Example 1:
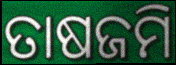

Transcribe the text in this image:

ତାଷଜମି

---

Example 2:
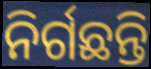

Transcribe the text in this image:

ନିର୍ଗଛନ୍ତି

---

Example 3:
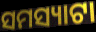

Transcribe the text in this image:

ସମସ୍ୟାଟା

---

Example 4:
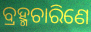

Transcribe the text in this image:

ବ୍ରହ୍ମଚାରିଣେ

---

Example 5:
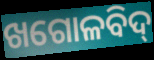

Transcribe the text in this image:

ଖଗୋଳବିଦ୍